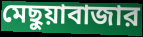
মেছুয়াবাজার